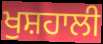
ਖੁਸ਼ਹਾਲੀ